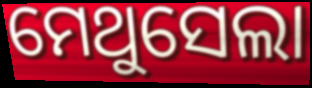
ମେଥୁସେଲା